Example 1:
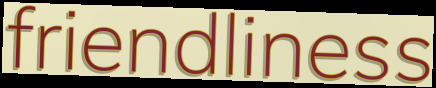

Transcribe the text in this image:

friendliness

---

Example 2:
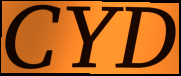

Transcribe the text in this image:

CYD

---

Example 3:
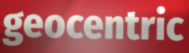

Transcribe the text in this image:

geocentric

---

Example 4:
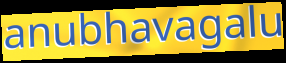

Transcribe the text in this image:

anubhavagalu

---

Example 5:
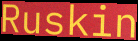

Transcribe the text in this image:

Ruskin